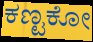
ಕಣ್ಟಕೋ